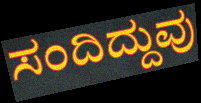
ಸಂದಿದ್ದುವು